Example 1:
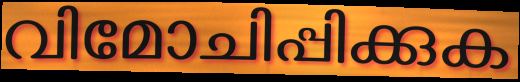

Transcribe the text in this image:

വിമോചിപ്പിക്കുക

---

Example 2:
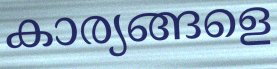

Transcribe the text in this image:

കാര്യങ്ങളെ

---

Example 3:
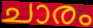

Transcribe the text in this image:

ചാരം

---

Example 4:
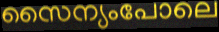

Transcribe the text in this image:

സൈന്യംപോലെ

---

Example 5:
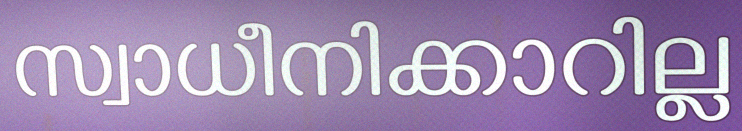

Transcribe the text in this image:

സ്വാധീനിക്കാറില്ല